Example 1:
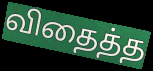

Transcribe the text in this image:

விதைத்த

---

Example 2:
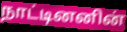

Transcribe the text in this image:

நாட்டினனின்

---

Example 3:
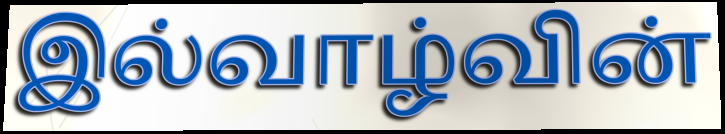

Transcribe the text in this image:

இல்வாழ்வின்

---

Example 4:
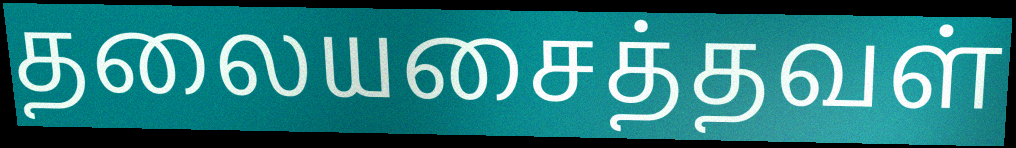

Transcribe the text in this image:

தலையசைத்தவள்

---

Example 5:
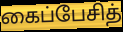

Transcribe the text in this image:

கைப்பேசித்